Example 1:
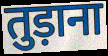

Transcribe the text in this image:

तुड़ाना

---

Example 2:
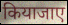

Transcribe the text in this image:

कियाजाए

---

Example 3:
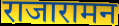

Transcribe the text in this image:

राजारामन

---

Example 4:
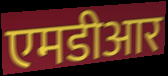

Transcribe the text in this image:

एमडीआर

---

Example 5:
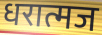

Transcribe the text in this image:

धरात्मज